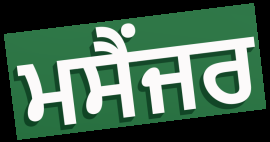
ਮਸੈਂਜਰ